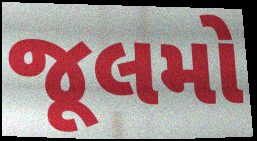
જૂલમો